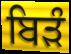
ਬਿੜੰ